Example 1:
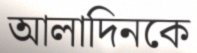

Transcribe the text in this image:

আলাদিনকে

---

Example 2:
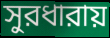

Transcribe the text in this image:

সুরধারায়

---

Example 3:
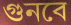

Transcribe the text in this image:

গুনবে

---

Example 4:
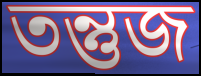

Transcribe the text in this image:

তন্তুজ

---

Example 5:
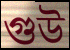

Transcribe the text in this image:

গুউ